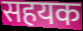
सहयक